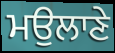
ਮਉਲਾਣੇ